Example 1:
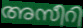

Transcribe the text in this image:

അസീറി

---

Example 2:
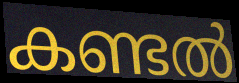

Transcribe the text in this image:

കണ്ടൽ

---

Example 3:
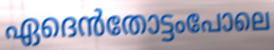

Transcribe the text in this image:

ഏദെൻതോട്ടംപോലെ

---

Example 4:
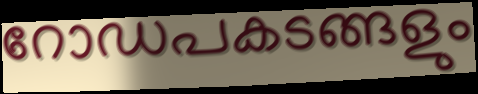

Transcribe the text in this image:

റോഡപകടങ്ങളും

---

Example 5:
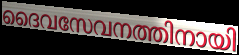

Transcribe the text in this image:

ദൈവസേവനത്തിനായി